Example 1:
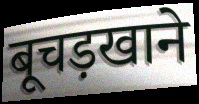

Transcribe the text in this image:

बूचड़खाने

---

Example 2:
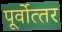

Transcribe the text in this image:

पूर्वोत्‍तर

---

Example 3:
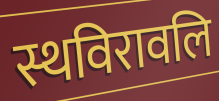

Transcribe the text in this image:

स्थविरावलि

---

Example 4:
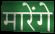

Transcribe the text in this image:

मारेंगे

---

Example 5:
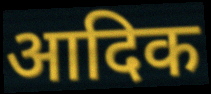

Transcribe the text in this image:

आदिक